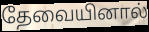
தேவையினால்